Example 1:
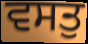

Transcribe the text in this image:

ਵਸਤੁ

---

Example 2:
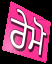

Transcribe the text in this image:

ਰੇਮੋ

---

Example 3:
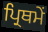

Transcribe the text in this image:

ਪ੍ਰਿਥਮੇਂ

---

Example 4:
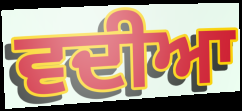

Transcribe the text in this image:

ਵਦੀਆ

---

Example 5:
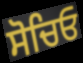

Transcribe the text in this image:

ਸੋਚਿਓ